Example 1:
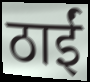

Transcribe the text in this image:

ठाईं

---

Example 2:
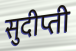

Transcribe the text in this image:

सुदीप्ती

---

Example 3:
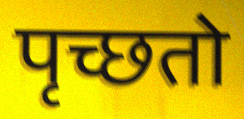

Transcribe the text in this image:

पृच्छतो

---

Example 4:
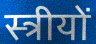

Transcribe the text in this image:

स्त्रीयों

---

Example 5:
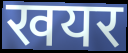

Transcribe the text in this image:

खयर